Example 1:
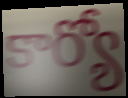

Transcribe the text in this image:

కార్యో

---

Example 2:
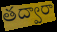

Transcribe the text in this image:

తద్వారా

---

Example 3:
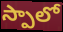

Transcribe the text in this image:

స్పాలో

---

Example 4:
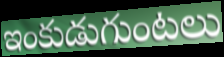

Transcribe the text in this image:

ఇంకుడుగుంటలు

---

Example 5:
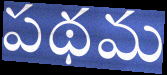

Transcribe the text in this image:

పథమ